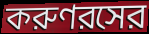
করুণরসের